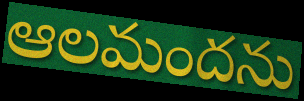
ఆలమందను